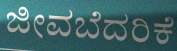
ಜೀವಬೆದರಿಕೆ